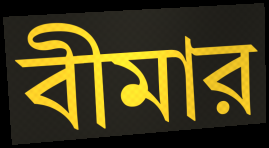
বীমার